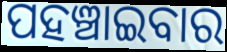
ପହଞ୍ଚାଇବାର